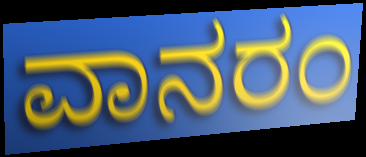
ವಾನರಂ